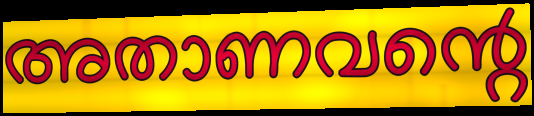
അതാണവന്റെ